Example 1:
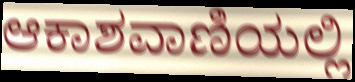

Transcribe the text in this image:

ಆಕಾಶವಾಣಿಯಲ್ಲಿ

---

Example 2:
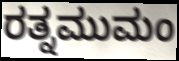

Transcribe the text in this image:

ರತ್ನಮುಮಂ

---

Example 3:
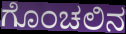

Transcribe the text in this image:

ಗೊಂಚಲಿನ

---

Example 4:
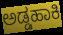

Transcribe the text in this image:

ಅಡ್ಡಹಾಕಿ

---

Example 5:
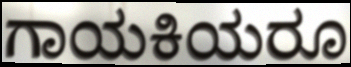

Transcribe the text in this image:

ಗಾಯಕಿಯರೂ